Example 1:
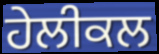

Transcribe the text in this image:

ਹੇਲੀਕਲ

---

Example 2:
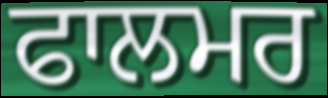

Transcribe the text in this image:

ਫਾਲਮਰ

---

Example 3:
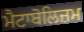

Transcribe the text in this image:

ਮੈਟਾਬੋਲਿਜ਼ਮ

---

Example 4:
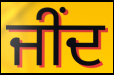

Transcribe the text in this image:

ਜੀਂਦ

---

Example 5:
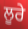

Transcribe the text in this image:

ਲੂਰੇ